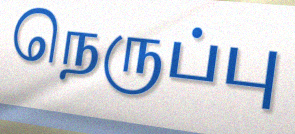
நெருப்பு